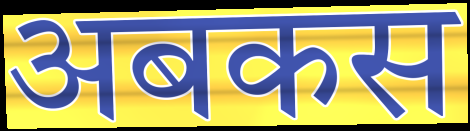
अबकस